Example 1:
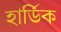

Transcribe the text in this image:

হাৰ্ডিক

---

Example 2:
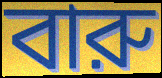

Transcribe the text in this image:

বাৰু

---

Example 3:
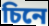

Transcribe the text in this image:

চিনে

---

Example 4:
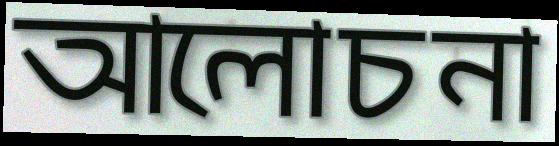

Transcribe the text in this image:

আলোচনা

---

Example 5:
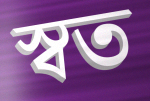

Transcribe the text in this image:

স্বত